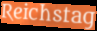
Reichstag